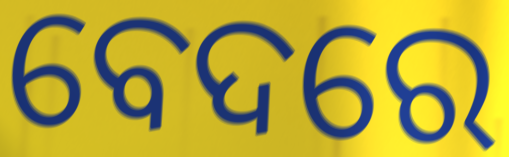
ବେଦରେ